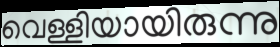
വെള്ളിയായിരുന്നു